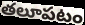
తలూపటం